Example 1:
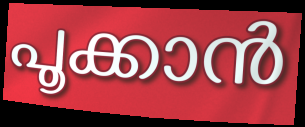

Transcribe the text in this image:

പൂക്കാൻ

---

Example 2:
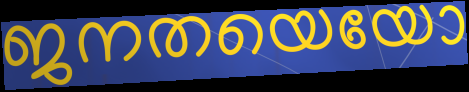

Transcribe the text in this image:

ജനതയെയോ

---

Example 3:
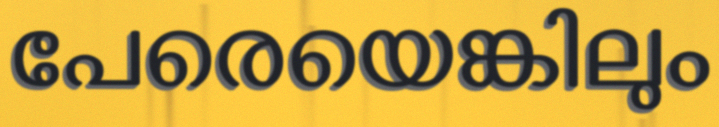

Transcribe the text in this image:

പേരെയെങ്കിലും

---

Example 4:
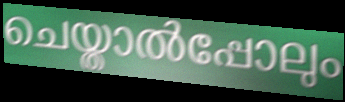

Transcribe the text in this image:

ചെയ്താൽപ്പോലും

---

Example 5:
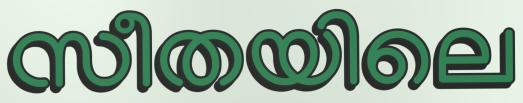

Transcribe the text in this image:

സീതയിലെ